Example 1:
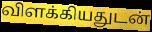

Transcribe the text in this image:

விளக்கியதுடன்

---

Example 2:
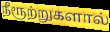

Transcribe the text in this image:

நீரூற்றுகளால்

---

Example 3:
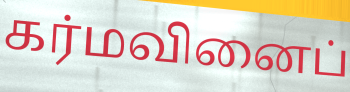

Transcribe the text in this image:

கர்மவினைப்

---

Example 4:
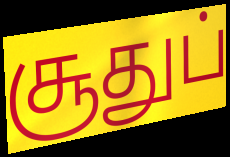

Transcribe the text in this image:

சூதுப்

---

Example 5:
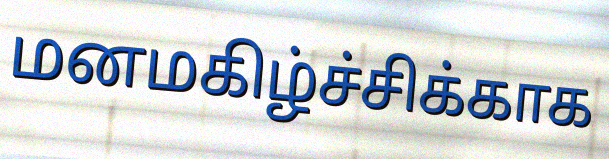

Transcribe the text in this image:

மனமகிழ்ச்சிக்காக